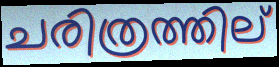
ചരിത്രത്തില്